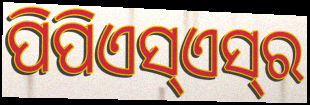
ପିପିଏସ୍ଏସ୍‌ର